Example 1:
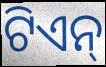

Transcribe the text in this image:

ଟିଏନ୍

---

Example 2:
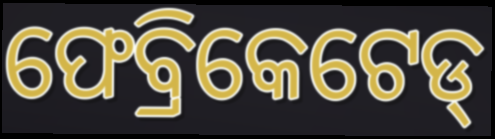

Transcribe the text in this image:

ଫେବ୍ରିକେଟେଡ୍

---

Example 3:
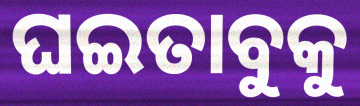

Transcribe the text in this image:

ଘଇତାବୁକୁ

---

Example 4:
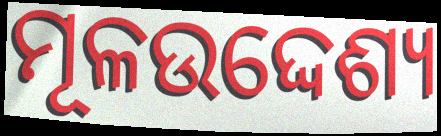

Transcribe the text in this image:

ମୂଳଉଦ୍ଦେଶ୍ୟ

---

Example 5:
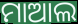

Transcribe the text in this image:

ମାଆଲ